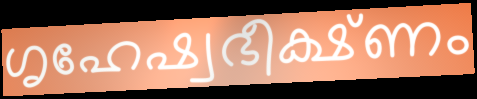
ഗൃഹേഷ്വഭീക്ഷ്ണം